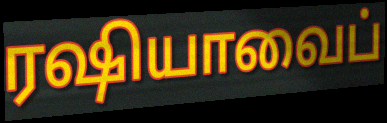
ரஷியாவைப்